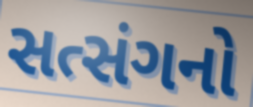
સત્સંગનો